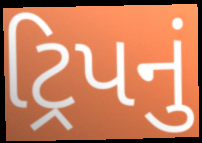
ટ્રિપનું